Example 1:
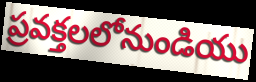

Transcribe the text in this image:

ప్రవక్తలలోనుండియు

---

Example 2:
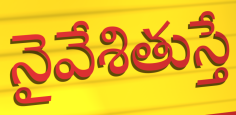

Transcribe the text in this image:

నైవేశితుస్తే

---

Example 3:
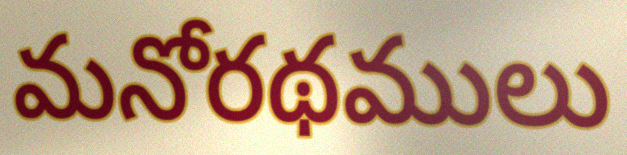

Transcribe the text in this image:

మనోరథములు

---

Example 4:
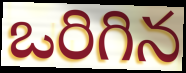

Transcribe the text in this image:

ఒరిగిన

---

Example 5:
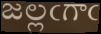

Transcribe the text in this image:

జల్లఁగాఁ